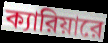
ক্যারিয়ারে